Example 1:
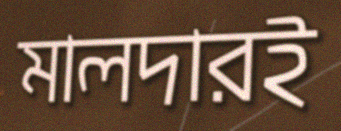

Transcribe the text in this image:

মালদারই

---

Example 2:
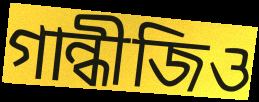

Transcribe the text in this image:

গান্ধীজিও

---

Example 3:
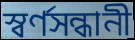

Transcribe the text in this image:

স্বর্ণসন্ধানী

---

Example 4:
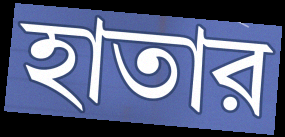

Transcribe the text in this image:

হাতার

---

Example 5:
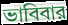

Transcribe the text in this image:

ভাবিবার